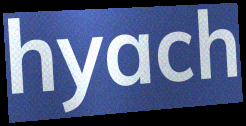
hyach